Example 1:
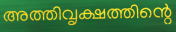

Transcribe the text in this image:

അത്തിവൃക്ഷത്തിന്റെ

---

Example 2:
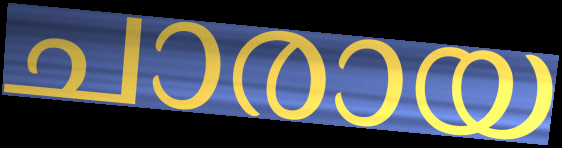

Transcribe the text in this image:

ചാരായ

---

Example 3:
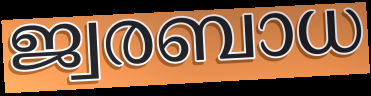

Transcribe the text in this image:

ജ്വരബാധ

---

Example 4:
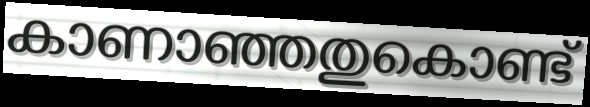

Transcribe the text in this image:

കാണാഞ്ഞതുകൊണ്ട്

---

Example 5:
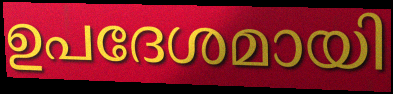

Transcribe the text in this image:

ഉപദേശമായി